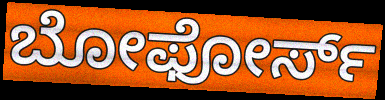
ಬೋಫೋರ್ಸ್